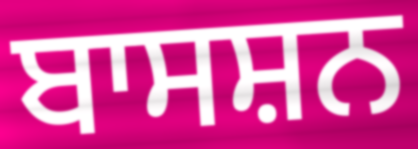
ਬਾਸਸ਼ਨ